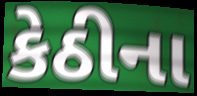
કેઠીના